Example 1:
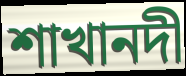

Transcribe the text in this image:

শাখানদী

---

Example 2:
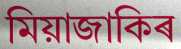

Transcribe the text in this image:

মিয়াজাকিৰ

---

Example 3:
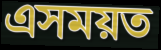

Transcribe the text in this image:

এসময়ত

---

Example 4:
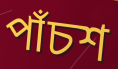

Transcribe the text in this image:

পাঁচশ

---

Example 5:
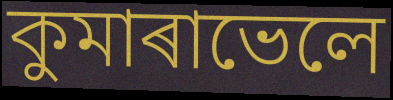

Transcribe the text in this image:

কুমাৰাভেলে